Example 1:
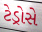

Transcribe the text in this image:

ટેડ્રોસે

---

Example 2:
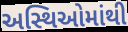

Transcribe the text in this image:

અસ્થિઓમાંથી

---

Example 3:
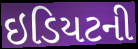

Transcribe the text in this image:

ઇડિયટની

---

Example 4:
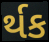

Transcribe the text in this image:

ર્થક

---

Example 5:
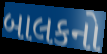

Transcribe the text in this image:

બાલકનો